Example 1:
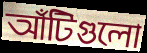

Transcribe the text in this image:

আঁটিগুলো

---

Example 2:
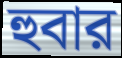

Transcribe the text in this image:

হুবার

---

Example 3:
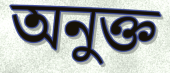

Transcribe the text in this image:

অনুক্ত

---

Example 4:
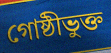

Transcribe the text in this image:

গোষ্ঠীভুক্ত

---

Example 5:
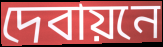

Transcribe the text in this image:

দেবায়নে